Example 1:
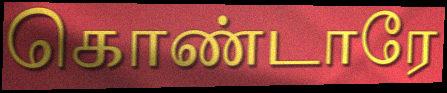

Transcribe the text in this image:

கொண்டாரே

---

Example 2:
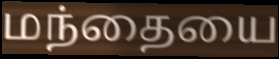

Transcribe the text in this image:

மந்தையை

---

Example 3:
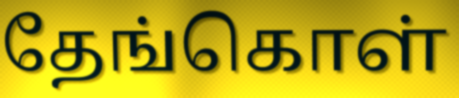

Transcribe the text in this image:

தேங்கொள்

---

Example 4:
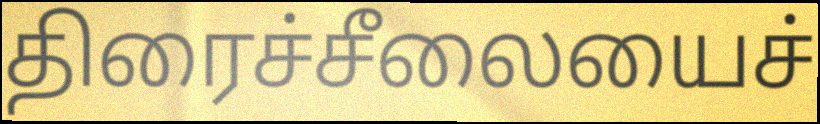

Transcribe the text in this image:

திரைச்சீலையைச்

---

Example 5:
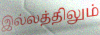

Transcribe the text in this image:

இல்லத்திலும்